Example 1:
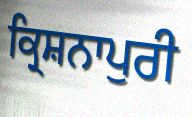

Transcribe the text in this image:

ਕ੍ਰਿਸ਼ਨਾਪੁਰੀ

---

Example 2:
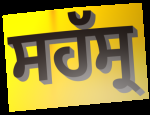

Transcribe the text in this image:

ਸਹੱਸ੍ਰ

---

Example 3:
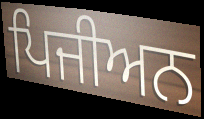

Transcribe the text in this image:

ਪਿਜੀਅਨ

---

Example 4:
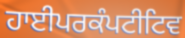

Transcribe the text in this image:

ਹਾਈਪਰਕੰਪਟੀਟਿਵ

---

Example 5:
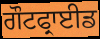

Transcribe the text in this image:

ਗੌਟਫ੍ਰਾਈਡ